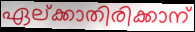
ഏല്ക്കാതിരിക്കാന്